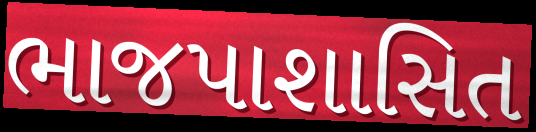
ભાજપાશાસિત